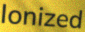
Ionized